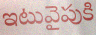
ఇటువైపుకి